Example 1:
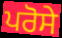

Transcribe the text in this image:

ਪਰੋਸੇ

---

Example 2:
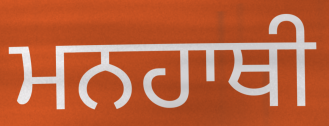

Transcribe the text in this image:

ਮਨਹਾਥੀ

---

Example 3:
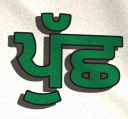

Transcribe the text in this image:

ਪੁੱਛ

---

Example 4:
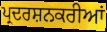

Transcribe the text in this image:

ਪ੍ਰਦਰਸ਼ਨਕਰੀਆਂ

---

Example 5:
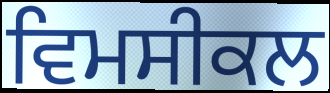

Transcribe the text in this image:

ਵਿਮਸੀਕਲ